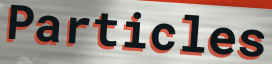
Particles